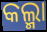
କଲ୍ମା